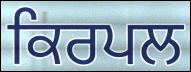
ਕਿਰਪਲ